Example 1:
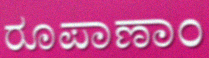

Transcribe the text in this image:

ರೂಪಾಣಾಂ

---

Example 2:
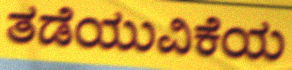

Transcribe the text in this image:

ತಡೆಯುವಿಕೆಯ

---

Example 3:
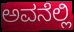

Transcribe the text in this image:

ಅವನೆಲ್ಲಿ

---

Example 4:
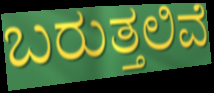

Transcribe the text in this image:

ಬರುತ್ತಲಿವೆ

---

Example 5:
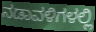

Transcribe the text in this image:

ನಡಾವಳಿಗಳಲ್ಲಿ